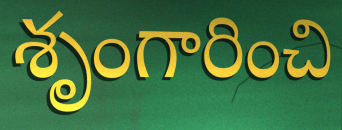
శృంగారించి